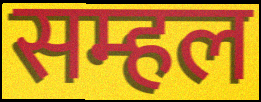
सम्हल